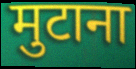
मुटाना